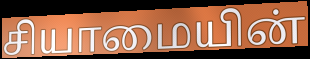
சியாமையின்